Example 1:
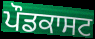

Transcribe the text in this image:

ਪੌਡਕਾਸਟ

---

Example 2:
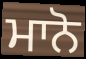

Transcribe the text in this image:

ਮਾਨੋ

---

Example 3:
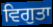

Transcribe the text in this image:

ਵਿਗੁਤਾ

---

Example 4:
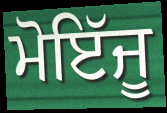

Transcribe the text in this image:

ਮੋਇੱਜੂ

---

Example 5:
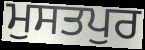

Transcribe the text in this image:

ਮੁਸਤਪੁਰ